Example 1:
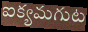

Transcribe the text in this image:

ఐక్యమగుట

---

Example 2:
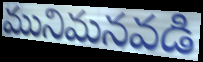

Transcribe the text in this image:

మునిమనవడి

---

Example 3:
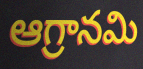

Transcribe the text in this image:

ఆగ్రానమి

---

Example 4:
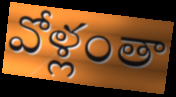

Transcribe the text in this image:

వోళ్లంతా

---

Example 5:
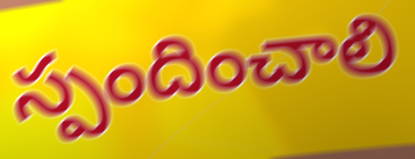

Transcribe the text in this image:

స్పందించాలి